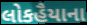
લોકહૈયાના